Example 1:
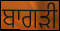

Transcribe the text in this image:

ਬਾਗੜੀ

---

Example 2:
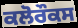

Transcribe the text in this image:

ਕਲੋਰੌਕਸ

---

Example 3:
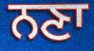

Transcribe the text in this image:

ਨਣਾ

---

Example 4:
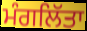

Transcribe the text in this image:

ਮੰਗਲਿੱਤਾ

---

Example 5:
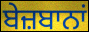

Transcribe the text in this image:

ਬੇਜ਼ਬਾਨਾਂ